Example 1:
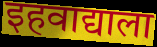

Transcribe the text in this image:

इहवाद्याला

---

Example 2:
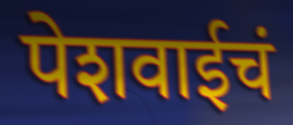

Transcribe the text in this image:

पेशवाईचं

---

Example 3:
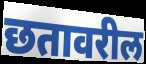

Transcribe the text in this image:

छतावरील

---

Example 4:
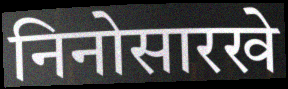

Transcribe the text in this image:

निनोसारखे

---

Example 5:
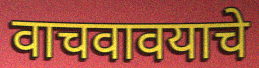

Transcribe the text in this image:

वाचवावयाचे